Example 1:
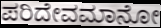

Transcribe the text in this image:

ಪರಿದೇವಮಾನೋ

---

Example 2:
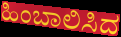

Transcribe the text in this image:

ಹಿಂಬಾಲಿಸಿದ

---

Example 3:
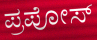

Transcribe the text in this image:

ಪ್ರಪೋಸ್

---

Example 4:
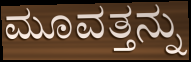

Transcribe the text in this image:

ಮೂವತ್ತನ್ನು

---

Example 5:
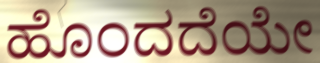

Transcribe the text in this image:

ಹೊಂದದೆಯೇ